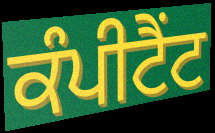
ਕੰਪੀਟੈਂਟ